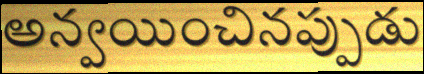
అన్వయించినప్పుడు